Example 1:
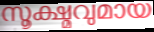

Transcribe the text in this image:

സൂക്ഷ്മവുമായ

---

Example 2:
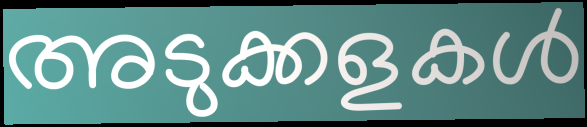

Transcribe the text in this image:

അടുക്കളകൾ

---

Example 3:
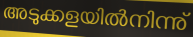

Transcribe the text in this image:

അടുക്കളയിൽനിന്നു്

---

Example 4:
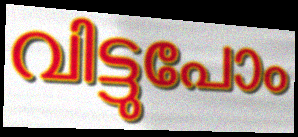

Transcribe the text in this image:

വിട്ടുപോം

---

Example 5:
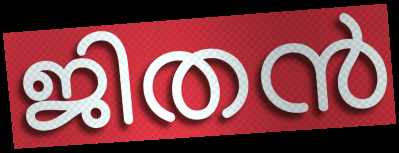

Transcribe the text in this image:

ജിതൻ